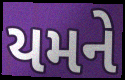
યમને